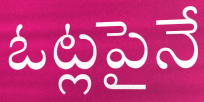
ఓట్లపైనే